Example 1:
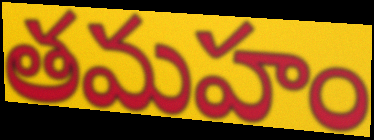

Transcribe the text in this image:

తమహం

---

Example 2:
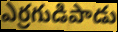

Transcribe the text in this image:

ఎర్రగుడిపాడు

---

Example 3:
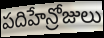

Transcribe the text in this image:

పదిహేన్రోజులు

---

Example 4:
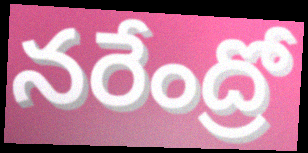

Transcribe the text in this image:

నరేంద్రో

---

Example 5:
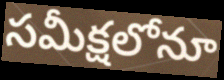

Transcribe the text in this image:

సమీక్షలోనూ